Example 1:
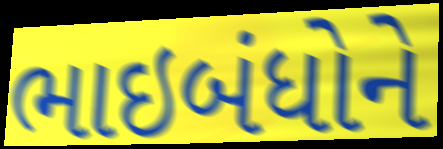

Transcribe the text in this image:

ભાઇબંધોને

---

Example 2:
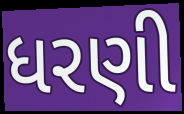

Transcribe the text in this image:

ધરણી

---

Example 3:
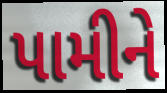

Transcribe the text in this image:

પામીને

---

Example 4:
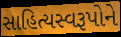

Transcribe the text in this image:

સાહિત્યસ્વરૂપોને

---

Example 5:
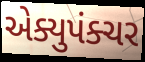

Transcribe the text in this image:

એક્યુપંક્ચર